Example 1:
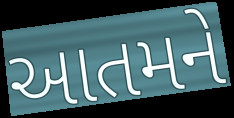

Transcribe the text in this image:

આતમને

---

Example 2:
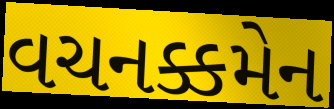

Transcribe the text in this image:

વચનક્કમેન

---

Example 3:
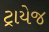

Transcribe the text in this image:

ટ્રાયેજ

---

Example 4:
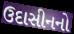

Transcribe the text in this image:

ઉદાસીનનો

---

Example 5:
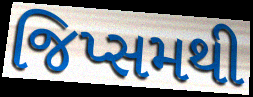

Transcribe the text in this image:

જિપ્સમથી